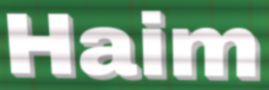
Haim